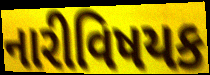
નારીવિષયક